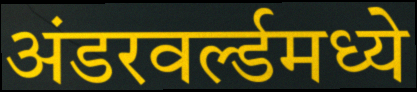
अंडरवर्ल्डमध्ये